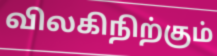
விலகிநிற்கும்